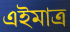
এইমাত্র